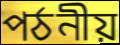
পঠনীয়